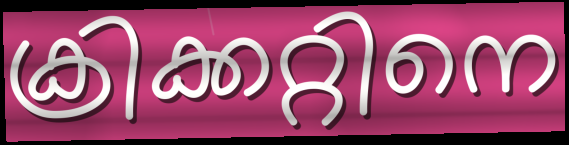
ക്രിക്കറ്റിനെ